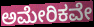
ಅಮೇರಿಕವೇ